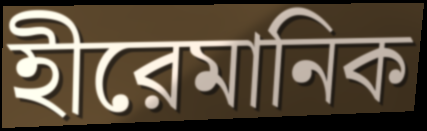
হীরেমানিক